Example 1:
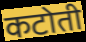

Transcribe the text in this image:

कटोती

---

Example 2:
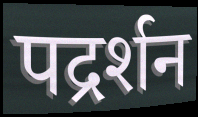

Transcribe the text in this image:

पद्रर्शन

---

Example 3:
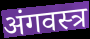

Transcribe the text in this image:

अंगवस्त्र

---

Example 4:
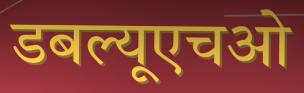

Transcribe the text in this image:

डबल्यूएचओ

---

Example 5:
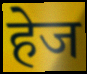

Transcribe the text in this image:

हेज